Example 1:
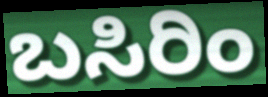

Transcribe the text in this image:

ಬಸಿರಿಂ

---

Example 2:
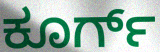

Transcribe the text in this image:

ಕೂರ್ಗ್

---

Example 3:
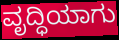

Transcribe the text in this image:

ವೃದ್ಧಿಯಾಗು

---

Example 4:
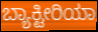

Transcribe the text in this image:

ಬ್ಯಾಕ್ಟೀರಿಯಾ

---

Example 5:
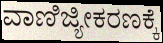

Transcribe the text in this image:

ವಾಣಿಜ್ಯೀಕರಣಕ್ಕೆ